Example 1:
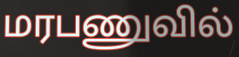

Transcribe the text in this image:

மரபணுவில்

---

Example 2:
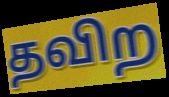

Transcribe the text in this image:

தவிற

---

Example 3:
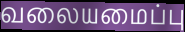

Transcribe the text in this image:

வலையமைப்பு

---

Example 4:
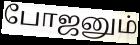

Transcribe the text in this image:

போஜனும்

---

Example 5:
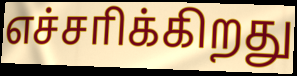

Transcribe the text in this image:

எச்சரிக்கிறது